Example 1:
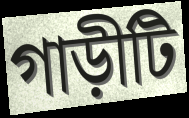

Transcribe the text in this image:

গাড়ীটি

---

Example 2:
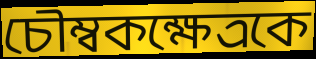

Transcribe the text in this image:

চৌম্বকক্ষেত্রকে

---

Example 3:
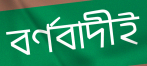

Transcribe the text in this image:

বর্ণবাদীই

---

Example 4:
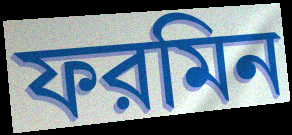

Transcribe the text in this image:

ফরমিন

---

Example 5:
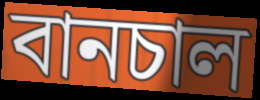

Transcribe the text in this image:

বানচাল